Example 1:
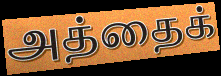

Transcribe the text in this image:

அத்தைக்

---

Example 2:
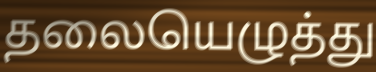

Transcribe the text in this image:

தலையெழுத்து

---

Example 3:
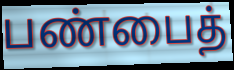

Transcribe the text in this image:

பண்பைத்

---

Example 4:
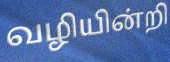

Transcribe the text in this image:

வழியின்றி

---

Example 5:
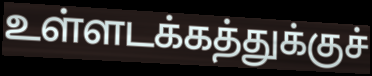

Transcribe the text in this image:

உள்ளடக்கத்துக்குச்